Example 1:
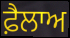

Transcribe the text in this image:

ਫ਼ੈਲਾਅ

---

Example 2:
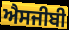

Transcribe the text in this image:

ਐਸਜੀਬੀ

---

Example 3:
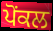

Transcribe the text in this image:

ਪੋਂਕਲ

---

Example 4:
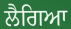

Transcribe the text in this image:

ਲੈਗਿਆ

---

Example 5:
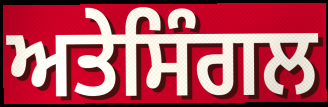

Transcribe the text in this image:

ਅਤੇਸਿੰਗਲ